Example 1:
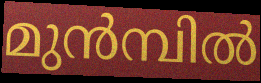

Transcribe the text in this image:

മുൻമ്പിൽ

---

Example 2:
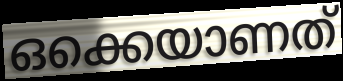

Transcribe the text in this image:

ഒക്കെയാണത്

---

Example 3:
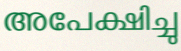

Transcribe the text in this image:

അപേക്ഷിച്ചു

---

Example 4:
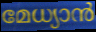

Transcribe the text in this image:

മേധ്യാൻ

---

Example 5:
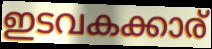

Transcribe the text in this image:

ഇടവകക്കാര്